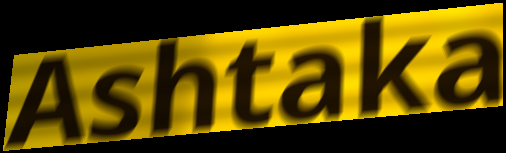
Ashtaka